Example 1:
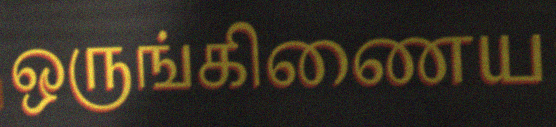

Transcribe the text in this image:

ஒருங்கிணைய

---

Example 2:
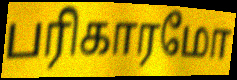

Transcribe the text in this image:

பரிகாரமோ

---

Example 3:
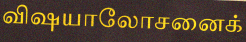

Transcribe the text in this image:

விஷயாலோசனைக்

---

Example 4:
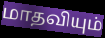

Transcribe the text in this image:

மாதவியும்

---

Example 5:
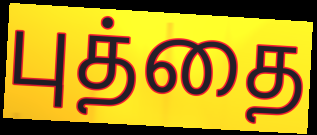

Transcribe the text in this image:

புத்தை